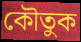
কৌতুক